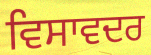
ਵਿਸਾਵਦਰ